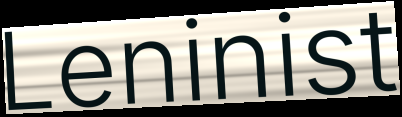
Leninist